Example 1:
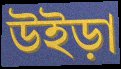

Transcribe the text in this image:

উইড়া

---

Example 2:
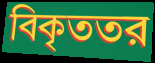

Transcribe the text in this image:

বিকৃততর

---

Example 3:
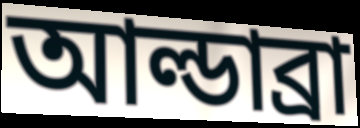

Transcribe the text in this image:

আল্ডাব্রা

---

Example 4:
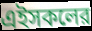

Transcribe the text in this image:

এইসকলের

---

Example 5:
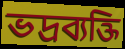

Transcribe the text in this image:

ভদ্রব্যক্তি